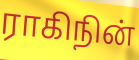
ராகிநின்